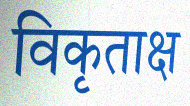
विकृताक्ष